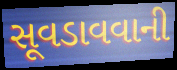
સૂવડાવવાની